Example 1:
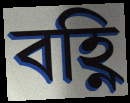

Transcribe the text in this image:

বহ্ণি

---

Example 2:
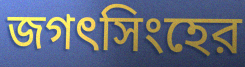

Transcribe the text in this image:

জগৎসিংহের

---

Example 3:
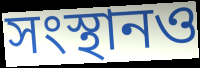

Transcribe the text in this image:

সংস্থানও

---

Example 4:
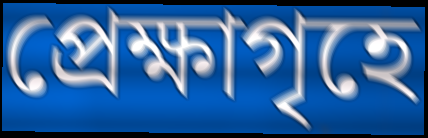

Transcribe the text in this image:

প্রেক্ষাগৃহে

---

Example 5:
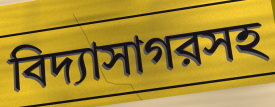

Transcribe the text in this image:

বিদ্যাসাগরসহ